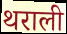
थराली